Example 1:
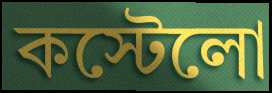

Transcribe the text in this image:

কস্টেলো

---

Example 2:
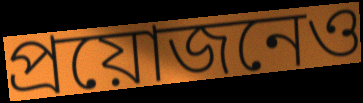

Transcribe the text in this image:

প্রয়োজনেও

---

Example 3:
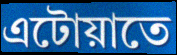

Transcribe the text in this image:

এটোয়াতে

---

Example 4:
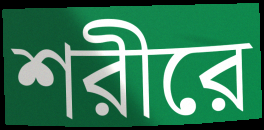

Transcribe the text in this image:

শরীরে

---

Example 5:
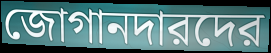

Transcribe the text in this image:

জোগানদারদের